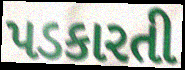
પડકારતી